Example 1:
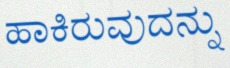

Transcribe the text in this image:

ಹಾಕಿರುವುದನ್ನು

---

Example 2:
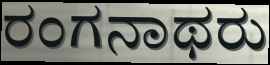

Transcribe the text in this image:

ರಂಗನಾಥರು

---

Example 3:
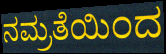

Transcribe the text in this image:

ನಮ್ರತೆಯಿಂದ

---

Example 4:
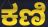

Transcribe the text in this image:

ಕಣಿ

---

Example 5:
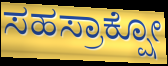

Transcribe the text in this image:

ಸಹಸ್ರಾಕ್ಷೋ